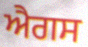
ਐਗਸ